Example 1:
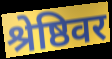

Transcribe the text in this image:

श्रेष्ठिवर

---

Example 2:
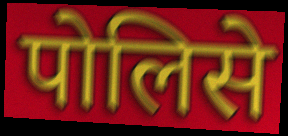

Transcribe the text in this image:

पोलिसे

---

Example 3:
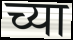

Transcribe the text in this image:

च्या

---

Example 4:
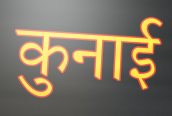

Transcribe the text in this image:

कुनाई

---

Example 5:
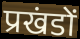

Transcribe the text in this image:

प्रखंडों